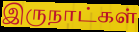
இருநாட்கள்